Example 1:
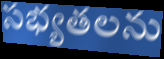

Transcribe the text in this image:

సభ్యతలను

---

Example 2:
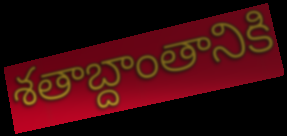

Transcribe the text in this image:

శతాబ్దాంతానికి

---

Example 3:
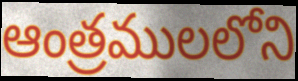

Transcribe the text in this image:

ఆంత్రములలోని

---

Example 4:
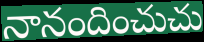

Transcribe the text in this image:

నానందించుచు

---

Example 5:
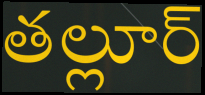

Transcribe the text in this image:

తల్లూర్